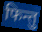
फिन्तु